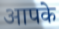
आपके